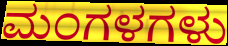
ಮಂಗಳಗಳು